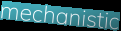
mechanistic